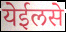
येईलसे